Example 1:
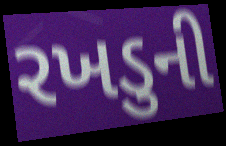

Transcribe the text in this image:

રખડુની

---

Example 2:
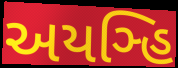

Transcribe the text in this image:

અયઞ્હિ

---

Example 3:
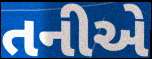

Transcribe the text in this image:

તનીએ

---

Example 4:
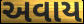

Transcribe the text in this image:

અવાય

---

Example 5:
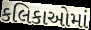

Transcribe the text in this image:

કલિકાઓમાં